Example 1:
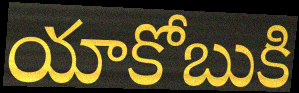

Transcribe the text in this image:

యాకోబుకి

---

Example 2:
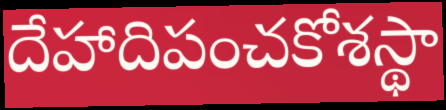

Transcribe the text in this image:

దేహాదిపంచకోశస్థా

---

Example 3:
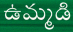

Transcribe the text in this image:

ఉమ్మడి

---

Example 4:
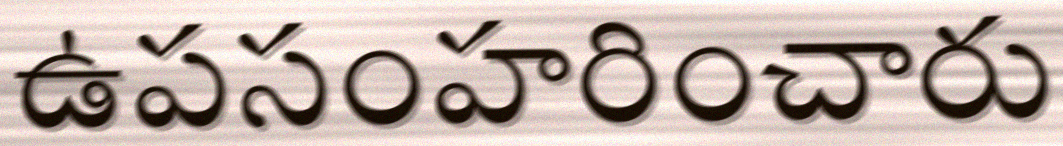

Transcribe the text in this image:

ఉపసంహరించారు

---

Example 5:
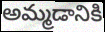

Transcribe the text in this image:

అమ్మడానికి